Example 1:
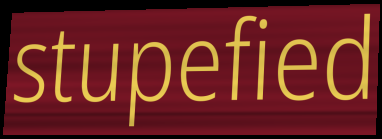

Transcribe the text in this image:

stupefied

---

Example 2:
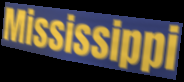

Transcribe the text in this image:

Mississippi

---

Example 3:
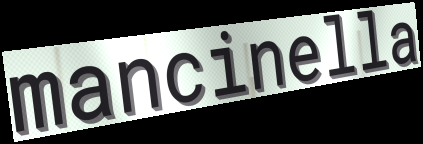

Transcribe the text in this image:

mancinella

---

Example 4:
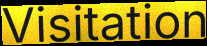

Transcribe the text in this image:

Visitation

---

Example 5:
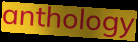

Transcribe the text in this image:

anthology